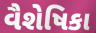
વૈશેષિકા